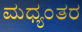
ಮಧ್ಯಂತರ